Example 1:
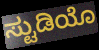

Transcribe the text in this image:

ಸ್ಟುಡಿಯೊ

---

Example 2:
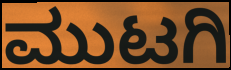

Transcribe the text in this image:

ಮುಟಗಿ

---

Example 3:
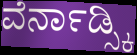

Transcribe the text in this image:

ವೆರ್ನಾಡ್ಸ್ಕಿ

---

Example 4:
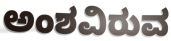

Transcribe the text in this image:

ಅಂಶವಿರುವ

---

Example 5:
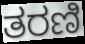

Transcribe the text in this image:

ತರಣಿ